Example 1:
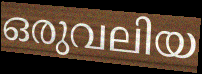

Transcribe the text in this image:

ഒരുവലിയ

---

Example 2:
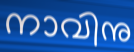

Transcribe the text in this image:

നാവിനു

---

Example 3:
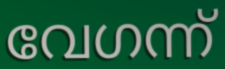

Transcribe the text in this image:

വേഗന്ന്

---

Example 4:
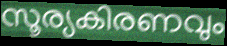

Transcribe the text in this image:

സൂര്യകിരണവും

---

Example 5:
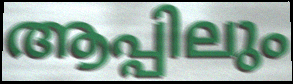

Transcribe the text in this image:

ആപ്പിലും